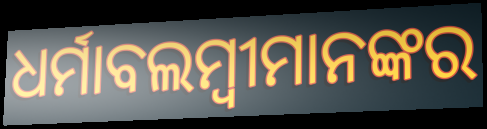
ଧର୍ମାବଲମ୍ବୀମାନଙ୍କର